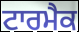
ਟਾਰਮੈਕ